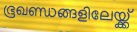
ഭൂഖണ്ഡങ്ങളിലേയ്ക്ക്